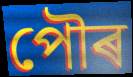
পৌৰ